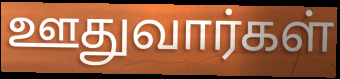
ஊதுவார்கள்